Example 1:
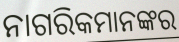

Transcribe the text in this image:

ନାଗରିକମାନଙ୍କର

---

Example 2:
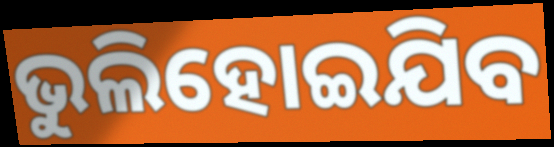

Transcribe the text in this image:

ଭୁଲିହୋଇଯିବ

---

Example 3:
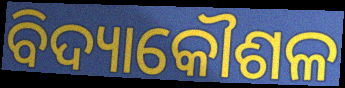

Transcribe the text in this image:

ବିଦ୍ୟାକୌଶଳ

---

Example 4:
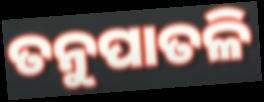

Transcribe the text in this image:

ତନୁପାତଳି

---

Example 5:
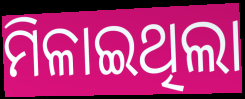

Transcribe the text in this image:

ମିଳାଇଥିଲା